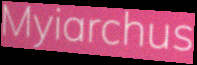
Myiarchus